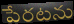
పేరటను